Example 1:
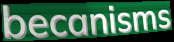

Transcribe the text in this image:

becanisms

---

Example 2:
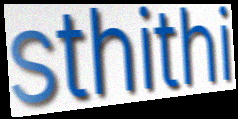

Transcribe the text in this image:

sthithi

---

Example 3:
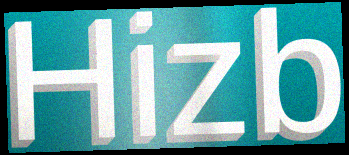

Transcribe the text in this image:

Hizb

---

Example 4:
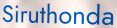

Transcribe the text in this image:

Siruthonda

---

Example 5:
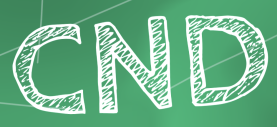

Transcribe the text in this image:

CND